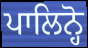
ਪਾਲਿਨ੍ਹੋ